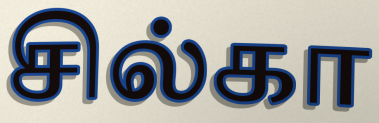
சில்கா